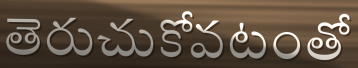
తెరుచుకోవటంతో